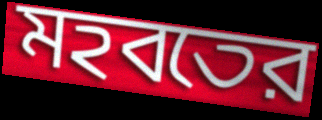
মহবতের